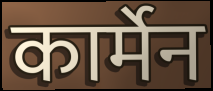
कार्मेन